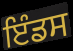
ਇੰਡਸ